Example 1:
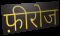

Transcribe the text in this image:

फ़ीरोज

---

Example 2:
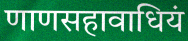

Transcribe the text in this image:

णाणसहावाधियं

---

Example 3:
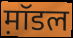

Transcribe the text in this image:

म़ॉडल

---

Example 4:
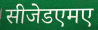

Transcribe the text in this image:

सीजेडएमए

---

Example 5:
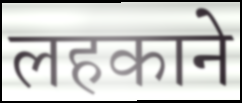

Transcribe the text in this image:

लहकाने